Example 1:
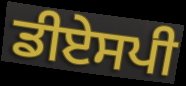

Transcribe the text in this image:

ਡੀਏਸਪੀ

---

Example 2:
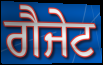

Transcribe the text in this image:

ਗੈਜੇਟ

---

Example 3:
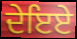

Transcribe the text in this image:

ਦੇਇਏ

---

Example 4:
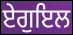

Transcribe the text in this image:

ਏਗੁਇਲ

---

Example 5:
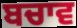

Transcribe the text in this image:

ਬਚਾਵ